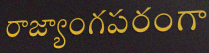
రాజ్యాంగపరంగా